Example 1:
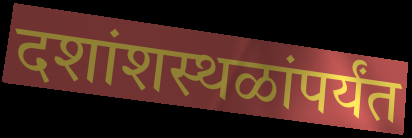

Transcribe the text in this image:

दशांशस्थळांपर्यंत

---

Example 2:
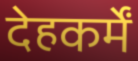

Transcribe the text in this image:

देहकर्में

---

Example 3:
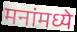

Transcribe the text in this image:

मनांमध्ये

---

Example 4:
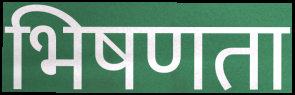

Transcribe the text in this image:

भिषणता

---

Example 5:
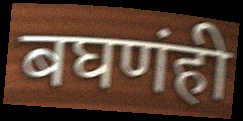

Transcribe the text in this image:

बघणंही